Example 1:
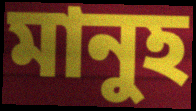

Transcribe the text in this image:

মানুহ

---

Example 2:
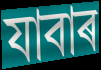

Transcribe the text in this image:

যাবাৰ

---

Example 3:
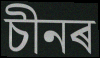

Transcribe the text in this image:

চীনৰ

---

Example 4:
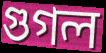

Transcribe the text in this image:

গুগল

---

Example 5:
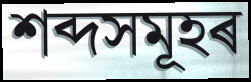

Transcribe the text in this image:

শব্দসমূহৰ